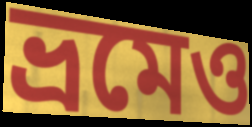
ভ্রমেও